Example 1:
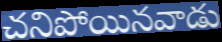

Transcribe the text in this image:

చనిపోయినవాడు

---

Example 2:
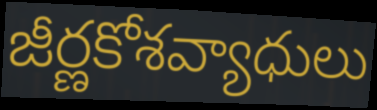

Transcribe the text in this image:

జీర్ణకోశవ్యాధులు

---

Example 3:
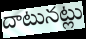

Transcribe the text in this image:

దాటునట్లు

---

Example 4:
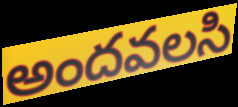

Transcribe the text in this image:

అందవలసి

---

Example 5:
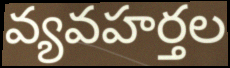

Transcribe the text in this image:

వ్యవహర్తల